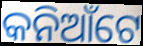
କନିଆଁଟେ